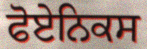
ਫੋਏਨਿਕਸ